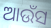
ଆଉଁସ